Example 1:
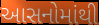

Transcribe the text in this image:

આસનોમાંથી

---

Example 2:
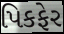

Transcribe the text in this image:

પિકફેર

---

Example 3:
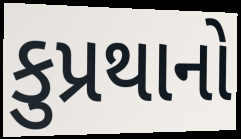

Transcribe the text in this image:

કુપ્રથાનો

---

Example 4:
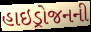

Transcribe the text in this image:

હાઇડ્રોજનની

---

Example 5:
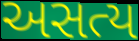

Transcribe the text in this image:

અસત્ય